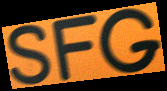
SFG